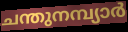
ചന്തുനമ്പ്യാർ